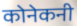
कोनेकनी